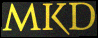
MKD